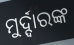
ମୁର୍ଦ୍ଦାରଙ୍କ